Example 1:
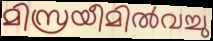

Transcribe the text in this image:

മിസ്രയീമിൽവച്ചു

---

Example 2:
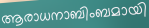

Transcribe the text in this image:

ആരാധനാബിംബമായി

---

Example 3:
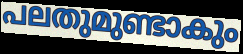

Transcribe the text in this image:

പലതുമുണ്ടാകും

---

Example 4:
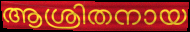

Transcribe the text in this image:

ആശ്രിതനായ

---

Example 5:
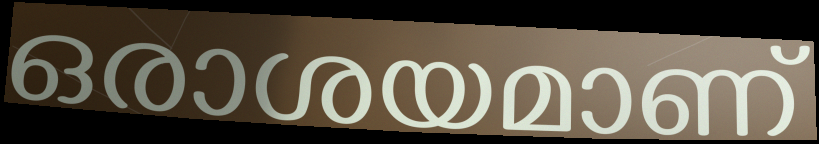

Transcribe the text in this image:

ഒരാശയമാണ്